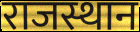
राजस्थान